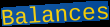
Balances